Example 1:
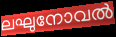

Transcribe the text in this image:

ലഘുനോവൽ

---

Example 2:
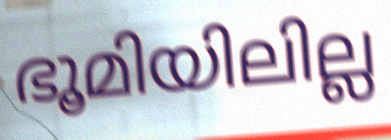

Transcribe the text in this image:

ഭൂമിയിലില്ല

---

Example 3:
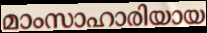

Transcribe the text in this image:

മാംസാഹാരിയായ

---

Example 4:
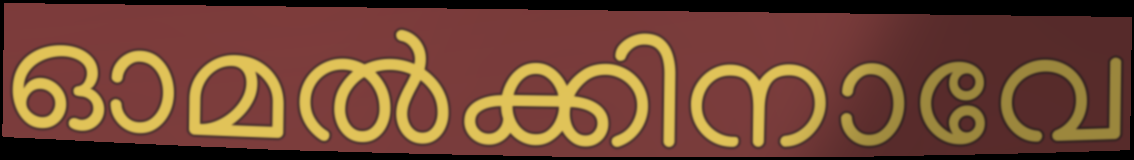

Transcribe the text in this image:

ഓമൽക്കിനാവേ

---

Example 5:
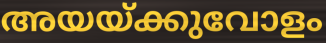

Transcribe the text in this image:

അയയ്ക്കുവോളം